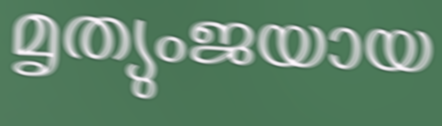
മൃത്യുംജയായ